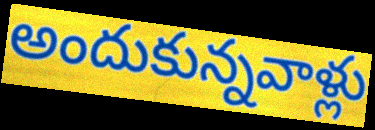
అందుకున్నవాళ్లు